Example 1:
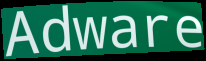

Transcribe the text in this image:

Adware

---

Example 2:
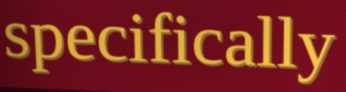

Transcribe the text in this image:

specifically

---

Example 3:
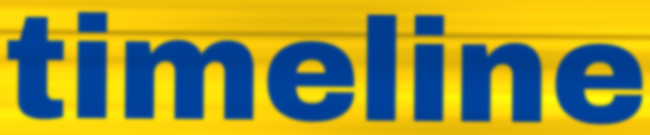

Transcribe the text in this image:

timeline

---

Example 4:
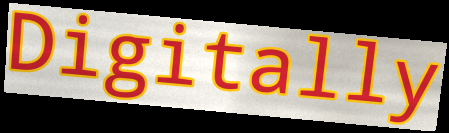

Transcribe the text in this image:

Digitally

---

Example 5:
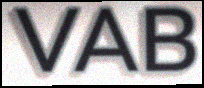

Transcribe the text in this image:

VAB